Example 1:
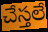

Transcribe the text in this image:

చేస్తలే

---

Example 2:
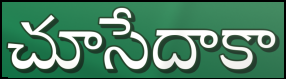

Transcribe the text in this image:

చూసేదాకా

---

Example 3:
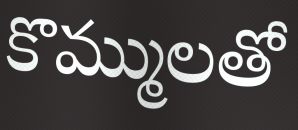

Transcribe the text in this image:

కొమ్ములతో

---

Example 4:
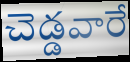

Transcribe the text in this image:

చెడ్డవారే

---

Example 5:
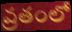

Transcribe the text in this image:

వ్రతంలో